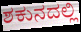
ಶಕುನದಲ್ಲಿ